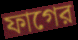
ফাগের